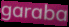
garaba